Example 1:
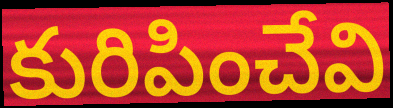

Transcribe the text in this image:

కురిపించేవి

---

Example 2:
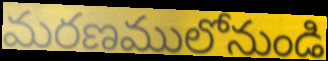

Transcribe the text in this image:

మరణములోనుండి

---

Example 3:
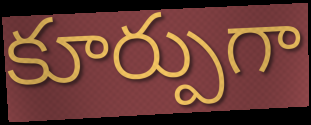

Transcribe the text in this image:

కూర్పుగా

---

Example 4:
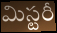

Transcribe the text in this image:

మిస్టరీ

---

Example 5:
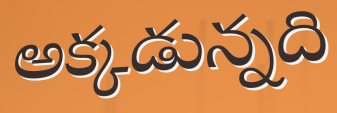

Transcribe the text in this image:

అక్కడున్నది